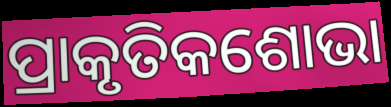
ପ୍ରାକୃତିକଶୋଭା